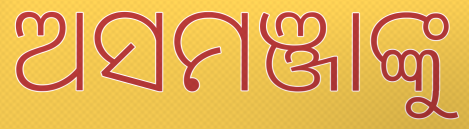
ଅସମଞ୍ଜାଙ୍କୁ